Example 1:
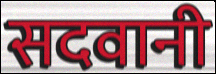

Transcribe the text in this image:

सदवानी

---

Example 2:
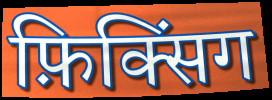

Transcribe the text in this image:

फ़िक्सिंग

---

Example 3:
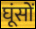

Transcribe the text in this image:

घूंसों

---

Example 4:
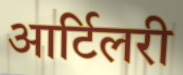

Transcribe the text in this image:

आर्टिलरी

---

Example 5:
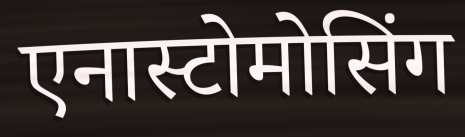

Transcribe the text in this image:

एनास्टोमोसिंग